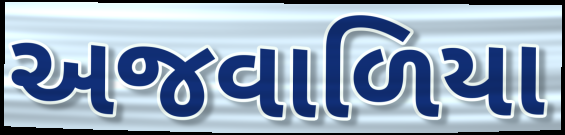
અજવાળિયા